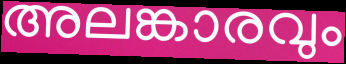
അലങ്കാരവും